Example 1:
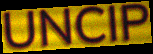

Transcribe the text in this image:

UNCIP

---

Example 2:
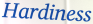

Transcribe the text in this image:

Hardiness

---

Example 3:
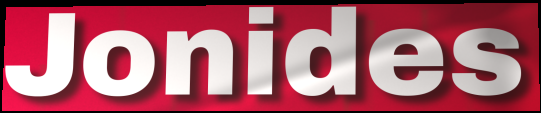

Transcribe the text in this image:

Jonides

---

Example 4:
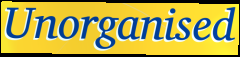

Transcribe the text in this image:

Unorganised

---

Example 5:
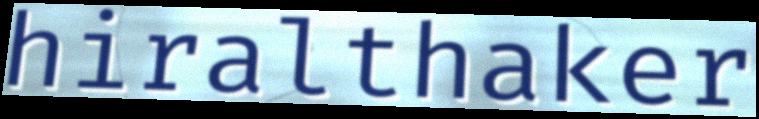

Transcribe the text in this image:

hiralthaker